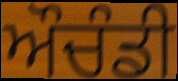
ਔਚੰਡੀ